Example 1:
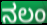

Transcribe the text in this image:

ನಲಂ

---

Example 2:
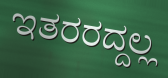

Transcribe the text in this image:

ಇತರರದ್ದಲ್ಲ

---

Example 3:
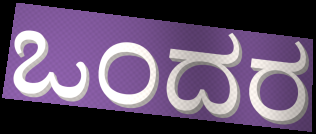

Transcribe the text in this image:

ಒಂದರ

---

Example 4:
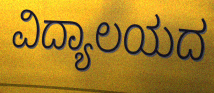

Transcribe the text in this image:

ವಿದ್ಯಾಲಯದ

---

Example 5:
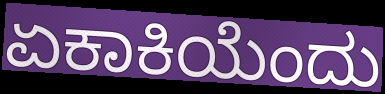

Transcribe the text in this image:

ಏಕಾಕಿಯೆಂದು